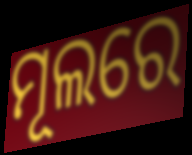
ମୂଲରେ